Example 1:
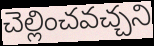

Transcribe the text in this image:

చెల్లించవచ్చని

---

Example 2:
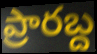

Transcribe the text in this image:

ప్రారబ్ద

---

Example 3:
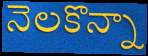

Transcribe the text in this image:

నెలకొన్నా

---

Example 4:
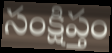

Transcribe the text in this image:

సంక్షిప్తం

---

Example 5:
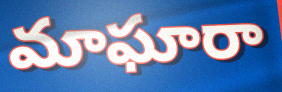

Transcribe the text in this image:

మాఘారా